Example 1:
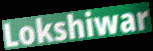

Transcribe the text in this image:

Lokshiwar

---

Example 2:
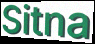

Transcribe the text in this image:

Sitna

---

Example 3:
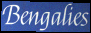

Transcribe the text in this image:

Bengalies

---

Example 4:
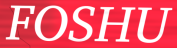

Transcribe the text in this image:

FOSHU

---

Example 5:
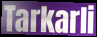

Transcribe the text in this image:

Tarkarli